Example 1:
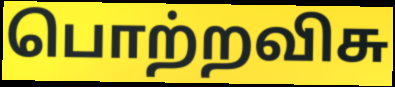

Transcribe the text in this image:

பொற்றவிசு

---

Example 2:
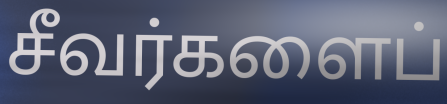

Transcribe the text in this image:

சீவர்களைப்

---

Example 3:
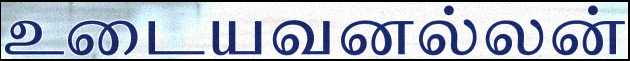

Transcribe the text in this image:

உடையவனல்லன்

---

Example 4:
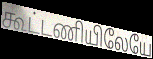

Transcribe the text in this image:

கூட்டணியிலேயே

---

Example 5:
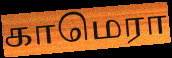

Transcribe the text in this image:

காமெரா